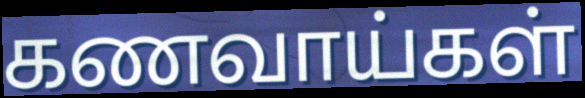
கணவாய்கள்